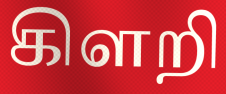
கிளறி